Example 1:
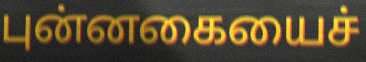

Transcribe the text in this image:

புன்னகையைச்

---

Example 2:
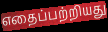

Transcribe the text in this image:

எதைப்பற்றியது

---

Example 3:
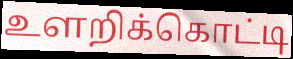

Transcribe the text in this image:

உளறிக்கொட்டி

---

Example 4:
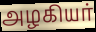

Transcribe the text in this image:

அழகியர்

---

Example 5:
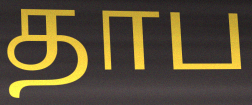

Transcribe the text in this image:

தாப